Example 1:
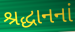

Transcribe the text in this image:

શ્રદ્ધાનનાં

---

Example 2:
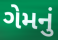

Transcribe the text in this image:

ગેમનું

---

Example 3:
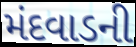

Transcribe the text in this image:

મંદવાડની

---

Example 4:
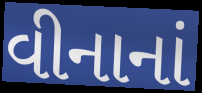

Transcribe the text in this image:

વીનાનાં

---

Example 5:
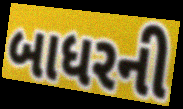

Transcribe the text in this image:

બાધરની